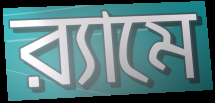
র‍্যামে